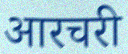
आरचरी